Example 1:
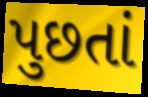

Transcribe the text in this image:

પુછતાં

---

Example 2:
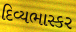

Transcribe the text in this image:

દિવ્યભાસ્કર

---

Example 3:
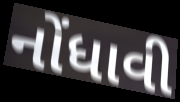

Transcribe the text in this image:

નોંધાવી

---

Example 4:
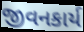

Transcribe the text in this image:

જીવનકાર્ય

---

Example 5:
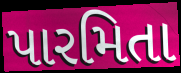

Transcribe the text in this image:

પારમિતા